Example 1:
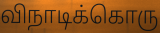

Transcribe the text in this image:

விநாடிக்கொரு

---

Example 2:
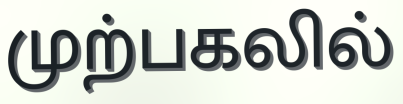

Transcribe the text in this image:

முற்பகலில்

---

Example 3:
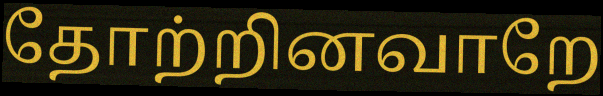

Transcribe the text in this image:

தோற்றினவாறே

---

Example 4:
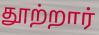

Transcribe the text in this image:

தூற்றார்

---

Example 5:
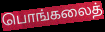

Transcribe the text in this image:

பொங்கலைத்